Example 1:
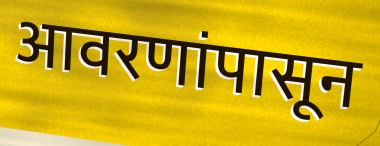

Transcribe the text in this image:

आवरणांपासून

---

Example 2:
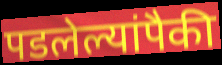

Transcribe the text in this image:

पडलेल्यांपैकी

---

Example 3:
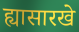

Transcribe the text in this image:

ह्यासारखे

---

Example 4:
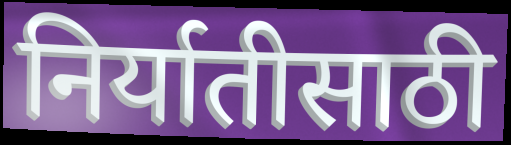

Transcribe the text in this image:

निर्यातीसाठी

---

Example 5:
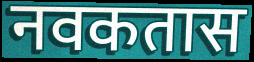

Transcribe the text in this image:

नवकतास